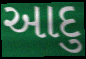
આદુ